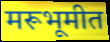
मरूभूमीत